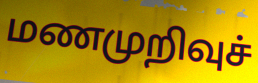
மணமுறிவுச்